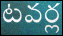
టవర్ల